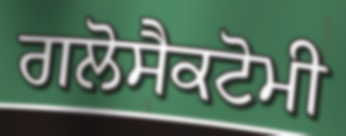
ਗਲੋਸੈਕਟੋਮੀ